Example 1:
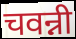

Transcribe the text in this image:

चवन्नी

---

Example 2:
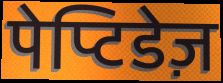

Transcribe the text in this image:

पेप्टिडेज़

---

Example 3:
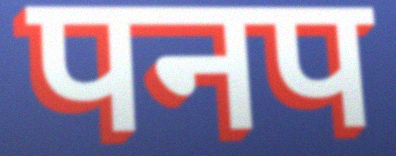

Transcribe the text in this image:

पनप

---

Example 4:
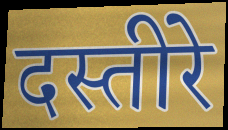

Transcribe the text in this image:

दस्तीरे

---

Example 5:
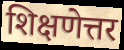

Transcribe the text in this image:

शिक्षणेत्तर